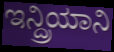
ಇನ್ದ್ರಿಯಾನಿ